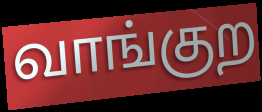
வாங்குற